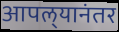
आपल्यानंतर